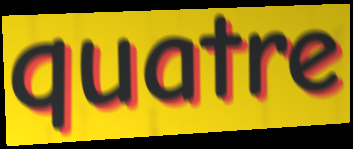
quatre